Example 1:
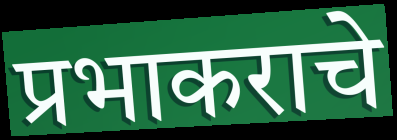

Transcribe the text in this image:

प्रभाकराचे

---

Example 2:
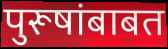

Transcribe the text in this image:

पुरूषांबाबत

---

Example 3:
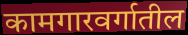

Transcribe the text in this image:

कामगारवर्गातील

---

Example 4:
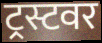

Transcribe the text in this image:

ट्रस्टवर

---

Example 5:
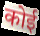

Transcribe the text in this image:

कोई